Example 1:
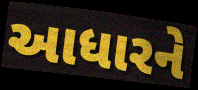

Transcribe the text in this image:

આધારને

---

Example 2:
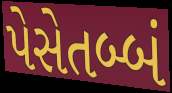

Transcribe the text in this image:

પેસેતબ્બં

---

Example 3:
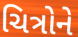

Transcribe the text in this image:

ચિત્રોને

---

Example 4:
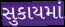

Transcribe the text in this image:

સુકાયમાં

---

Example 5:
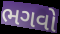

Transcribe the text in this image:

ભગવો